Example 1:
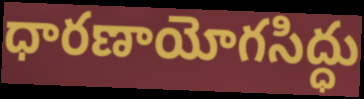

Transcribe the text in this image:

ధారణాయోగసిద్ధు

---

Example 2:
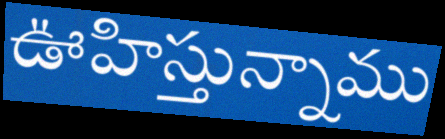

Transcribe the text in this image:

ఊహిస్తున్నాము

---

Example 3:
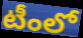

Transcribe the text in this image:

టీంలో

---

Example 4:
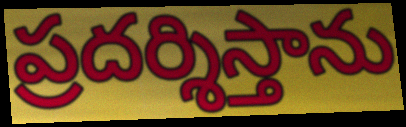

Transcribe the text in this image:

ప్రదర్శిస్తాను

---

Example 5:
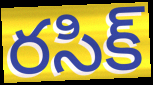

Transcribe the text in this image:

రసిక్